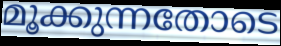
മൂക്കുന്നതോടെ